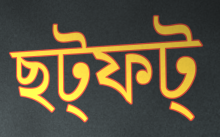
ছট্ফট্